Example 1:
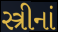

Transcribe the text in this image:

સ્ત્રીનાં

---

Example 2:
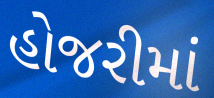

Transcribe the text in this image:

હોજરીમાં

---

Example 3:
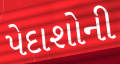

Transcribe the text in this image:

પેદાશોની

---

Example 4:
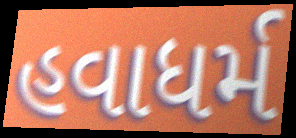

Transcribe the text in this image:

હવાધર્મ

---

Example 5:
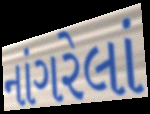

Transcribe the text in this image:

નાંગરેલાં